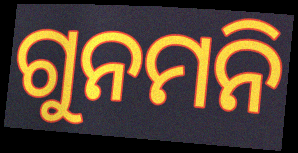
ଗୁନମନି